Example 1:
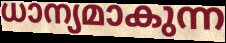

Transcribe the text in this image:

ധാന്യമാകുന്ന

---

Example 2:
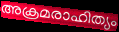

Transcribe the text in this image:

അക്രമരാഹിത്യം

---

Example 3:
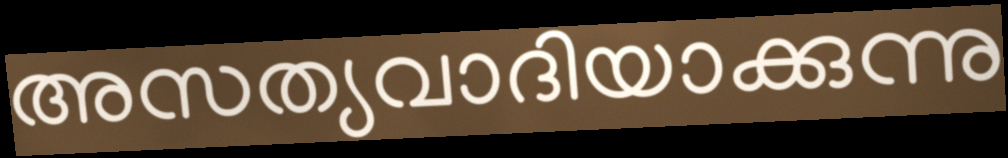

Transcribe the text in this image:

അസത്യവാദിയാക്കുന്നു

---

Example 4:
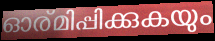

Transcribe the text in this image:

ഓര്മിപ്പിക്കുകയും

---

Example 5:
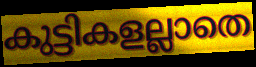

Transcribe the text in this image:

കുട്ടികളല്ലാതെ